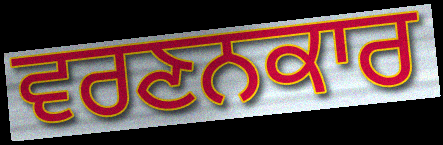
ਵਰਣਨਕਾਰ